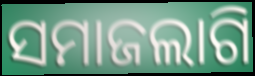
ସମାଜଲାଗି